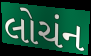
લોચંન